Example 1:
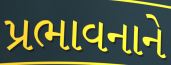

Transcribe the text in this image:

પ્રભાવનાને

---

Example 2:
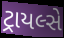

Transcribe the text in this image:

ટ્રાયલ્સે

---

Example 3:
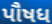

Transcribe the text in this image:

પૌષધ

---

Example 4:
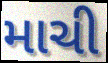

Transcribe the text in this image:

માચી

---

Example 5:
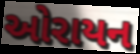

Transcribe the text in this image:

ઓરાયન